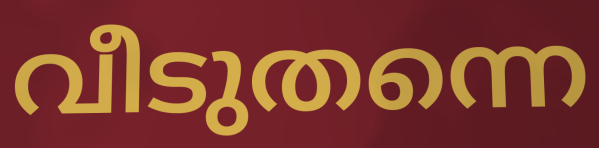
വീടുതന്നെ